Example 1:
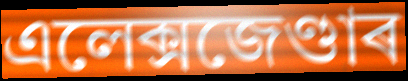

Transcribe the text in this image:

এলেক্সজেণ্ডাৰ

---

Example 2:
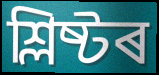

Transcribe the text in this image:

শ্লিষ্টৰ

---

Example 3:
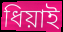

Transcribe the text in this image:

ধিয়াই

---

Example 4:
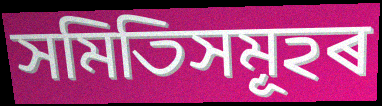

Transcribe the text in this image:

সমিতিসমূহৰ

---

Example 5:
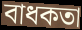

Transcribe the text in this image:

বাধকতা